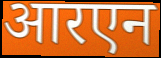
आरएन